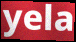
yela